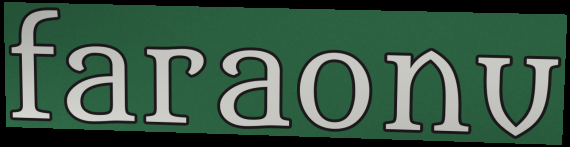
faraonu